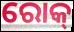
ରୋକ୍